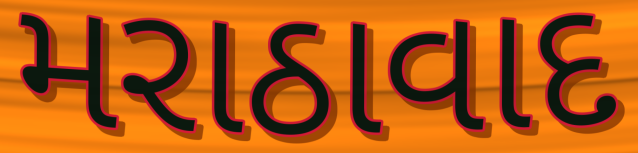
મરાઠાવાદ